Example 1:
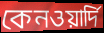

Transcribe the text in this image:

কেনওয়ার্দি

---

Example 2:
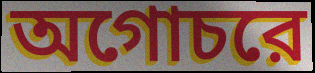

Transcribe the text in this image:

অগোচরে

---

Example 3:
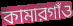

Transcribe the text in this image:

কামারগাঁও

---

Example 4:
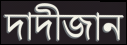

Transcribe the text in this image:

দাদীজান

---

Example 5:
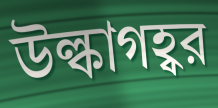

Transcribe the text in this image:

উল্কাগহ্বর